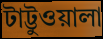
টাট্টুওয়ালা